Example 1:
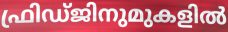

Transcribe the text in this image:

ഫ്രിഡ്ജിനുമുകളിൽ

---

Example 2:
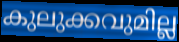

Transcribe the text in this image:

കുലുക്കവുമില്ല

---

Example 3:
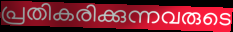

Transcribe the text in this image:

പ്രതികരിക്കുന്നവരുടെ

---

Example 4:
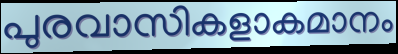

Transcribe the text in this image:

പുരവാസികളാകമാനം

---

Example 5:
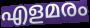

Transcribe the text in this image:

എളമരം